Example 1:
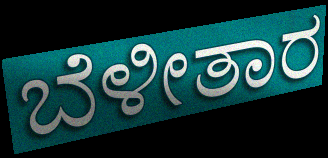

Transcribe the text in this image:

ಬೆಳೀತಾರ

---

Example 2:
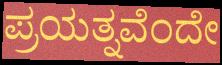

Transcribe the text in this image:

ಪ್ರಯತ್ನವೆಂದೇ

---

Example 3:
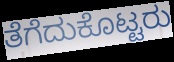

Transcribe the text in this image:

ತೆಗೆದುಕೊಟ್ಟರು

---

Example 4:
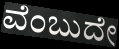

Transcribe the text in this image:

ವೆಂಬುದೇ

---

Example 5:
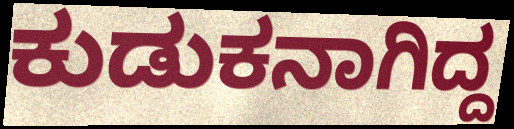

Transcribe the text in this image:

ಕುಡುಕನಾಗಿದ್ದ